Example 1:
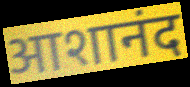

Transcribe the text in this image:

आशानंद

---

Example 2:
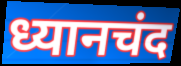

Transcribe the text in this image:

ध्यानचंद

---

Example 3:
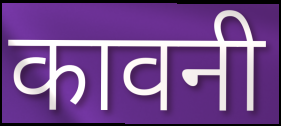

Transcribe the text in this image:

कावनी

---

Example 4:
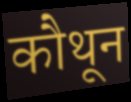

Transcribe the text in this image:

कौथून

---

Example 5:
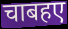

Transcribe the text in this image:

चाबहए